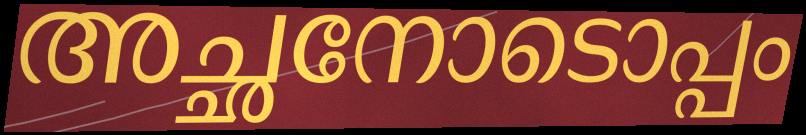
അച്ഛനോടൊപ്പം